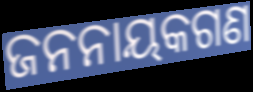
ଜନନାୟକଗଣ